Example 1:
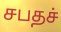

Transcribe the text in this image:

சபதச்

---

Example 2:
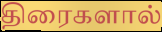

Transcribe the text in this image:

திரைகளால்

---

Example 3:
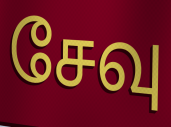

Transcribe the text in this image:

சேவு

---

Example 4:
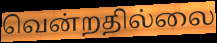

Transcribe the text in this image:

வென்றதில்லை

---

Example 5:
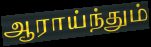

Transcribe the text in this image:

ஆராய்ந்தும்